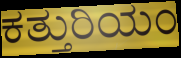
ಕತ್ತುರಿಯಂ